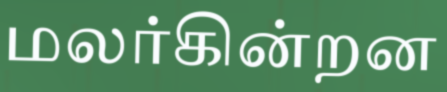
மலர்கின்றன